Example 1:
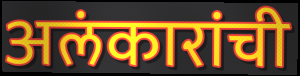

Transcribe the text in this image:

अलंकारांची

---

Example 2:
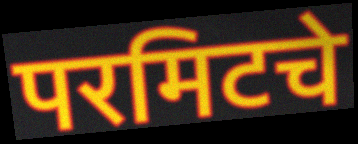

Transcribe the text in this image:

परमिटचे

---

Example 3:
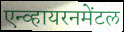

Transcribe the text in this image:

एन्व्हायरनमेंटल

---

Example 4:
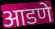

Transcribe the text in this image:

आडणे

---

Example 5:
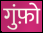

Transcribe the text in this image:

गुंफ़ो